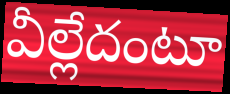
వీల్లేదంటూ